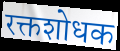
रक्तशोधक